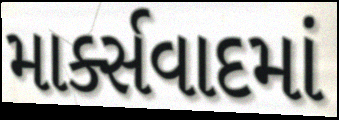
માર્ક્સવાદમાં